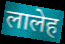
लालेह